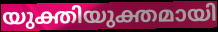
യുക്തിയുക്തമായി